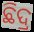
ଛିଦ୍ର